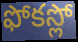
ఫోకస్లో